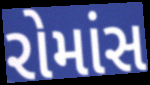
રોમાંસ